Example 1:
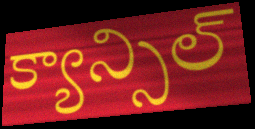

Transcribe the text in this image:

క్యాన్సిల్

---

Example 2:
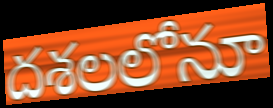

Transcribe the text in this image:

దశలలోనూ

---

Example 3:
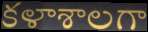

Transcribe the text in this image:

కళాశాలగా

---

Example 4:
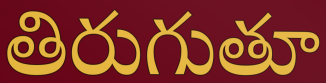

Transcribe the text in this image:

తిరుగుతూ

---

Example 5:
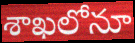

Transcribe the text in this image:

శాఖలోనూ